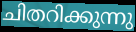
ചിതറിക്കുന്നു